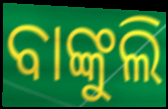
ବାଙ୍କୁଲି